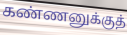
கண்ணனுக்குத்